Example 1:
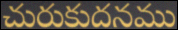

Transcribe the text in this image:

చురుకుదనము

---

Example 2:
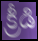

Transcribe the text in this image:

క్రీడి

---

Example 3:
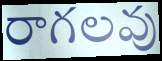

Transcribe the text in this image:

రాగలవు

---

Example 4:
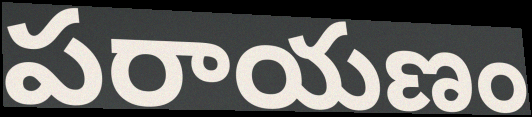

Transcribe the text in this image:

పరాయణం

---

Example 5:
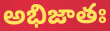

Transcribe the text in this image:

అభిజాతః